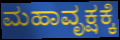
ಮಹಾವೃಕ್ಷಕ್ಕೆ